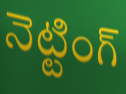
నెట్టింగ్